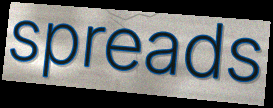
spreads